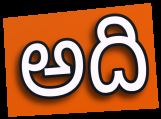
అది